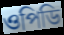
ওপিডি